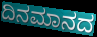
ದಿನಮಾನದ